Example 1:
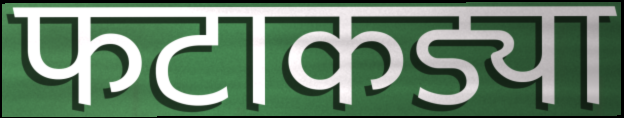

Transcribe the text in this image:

फटाकड्या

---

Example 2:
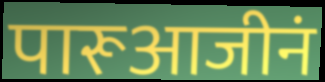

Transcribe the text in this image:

पारूआजीनं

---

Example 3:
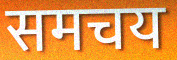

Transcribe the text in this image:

समचय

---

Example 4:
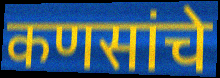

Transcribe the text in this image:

कणसांचे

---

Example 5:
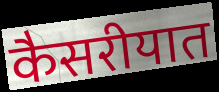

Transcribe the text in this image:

कैसरीयात